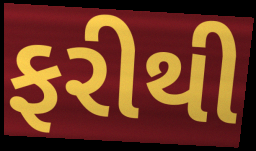
ફરીથી